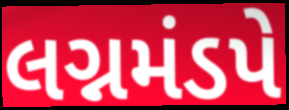
લગ્નમંડપે